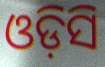
ଓଡ଼ିସି